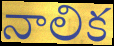
నాలిక